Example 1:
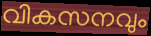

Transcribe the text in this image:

വികസനവും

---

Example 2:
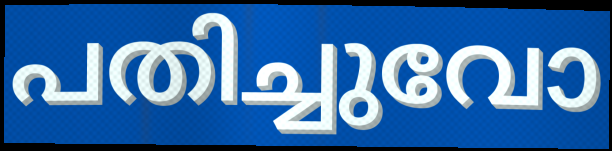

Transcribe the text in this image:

പതിച്ചുവോ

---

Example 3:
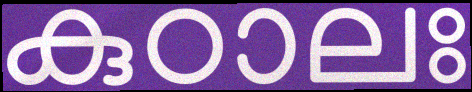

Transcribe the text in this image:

കുഠാലഃ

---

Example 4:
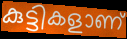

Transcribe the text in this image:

കുട്ടികളാണ്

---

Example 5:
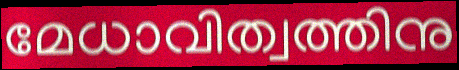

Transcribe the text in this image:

മേധാവിത്വത്തിനു